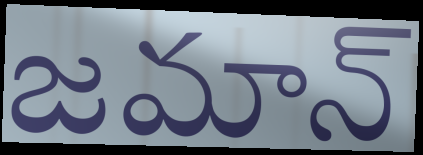
జమాన్